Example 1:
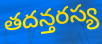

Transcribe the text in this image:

తదన్తరస్య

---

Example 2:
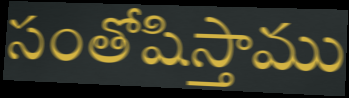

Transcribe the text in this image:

సంతోషిస్తాము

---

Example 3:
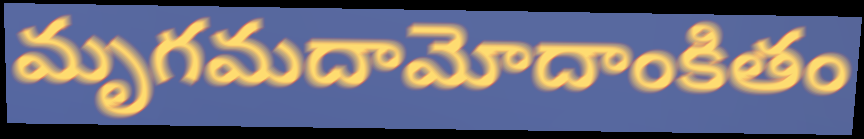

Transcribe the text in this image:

మృగమదామోదాంకితం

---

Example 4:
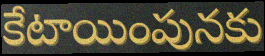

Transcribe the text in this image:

కేటాయింపునకు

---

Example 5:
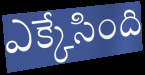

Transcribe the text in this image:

ఎక్కేసింది